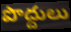
పొద్దులు